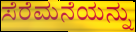
ಸೆರೆಮನೆಯನ್ನು